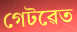
গেটৱেত